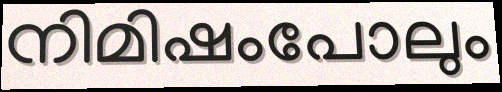
നിമിഷംപോലും